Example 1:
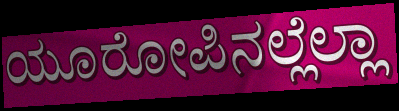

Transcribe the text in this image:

ಯೂರೋಪಿನಲ್ಲೆಲ್ಲಾ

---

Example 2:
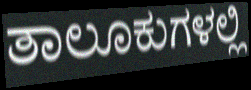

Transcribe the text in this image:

ತಾಲೂಕುಗಳಲ್ಲಿ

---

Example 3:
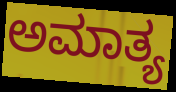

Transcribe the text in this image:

ಅಮಾತ್ಯ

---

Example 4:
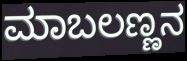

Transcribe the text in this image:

ಮಾಬಲಣ್ಣನ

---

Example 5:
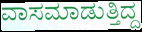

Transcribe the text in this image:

ವಾಸಮಾಡುತ್ತಿದ್ದ